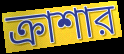
ক্রাশার